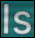
Is